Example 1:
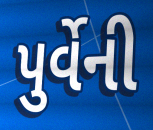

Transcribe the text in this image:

પુર્વેની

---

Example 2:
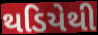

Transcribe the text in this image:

થડિયેથી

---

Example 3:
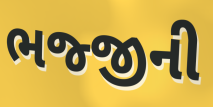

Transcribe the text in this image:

ભજ્જીની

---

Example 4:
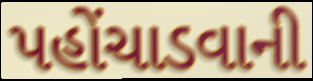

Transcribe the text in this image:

પહોંચાડવાની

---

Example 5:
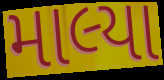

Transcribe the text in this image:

માલ્યા